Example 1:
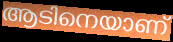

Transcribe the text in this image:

ആടിനെയാണ്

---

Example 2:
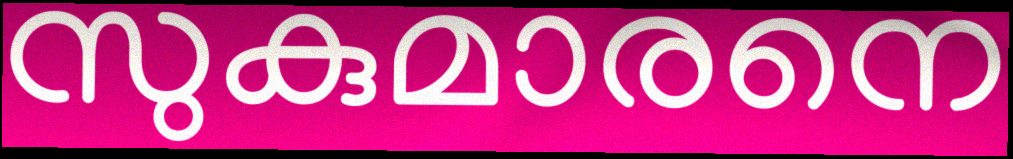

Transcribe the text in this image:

സുകുമാരനെ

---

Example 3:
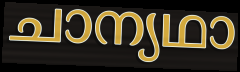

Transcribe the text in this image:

ചാന്യഥാ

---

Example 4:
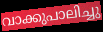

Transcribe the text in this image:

വാക്കുപാലിച്ചു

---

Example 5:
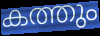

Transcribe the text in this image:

കത്തും